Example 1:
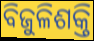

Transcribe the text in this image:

ବିଜୁଳିଶକ୍ତି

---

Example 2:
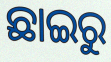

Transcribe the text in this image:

ଛାଇରୁ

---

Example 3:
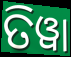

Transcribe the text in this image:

ତିୱା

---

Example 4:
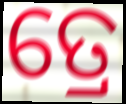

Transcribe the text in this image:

ତ୍ରେ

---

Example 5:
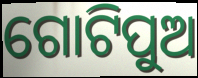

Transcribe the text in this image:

ଗୋଟିପୁଅ